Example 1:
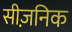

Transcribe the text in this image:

सीज़निक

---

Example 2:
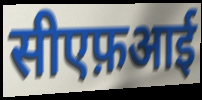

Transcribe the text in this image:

सीएफ़आई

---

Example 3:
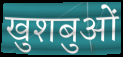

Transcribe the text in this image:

खुशबुओं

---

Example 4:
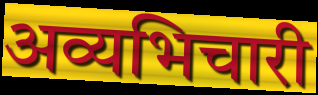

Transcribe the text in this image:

अव्यभिचारी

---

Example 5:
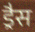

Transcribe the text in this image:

ड्रैस